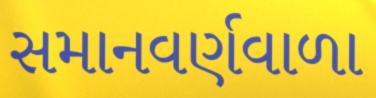
સમાનવર્ણવાળા